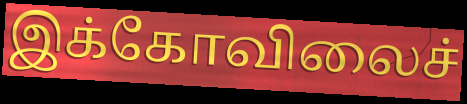
இக்கோவிலைச்